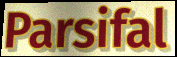
Parsifal